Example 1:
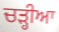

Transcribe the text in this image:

ਚੜ੍ਹੀਆ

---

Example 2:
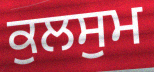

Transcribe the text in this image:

ਕੁਲਸੁਮ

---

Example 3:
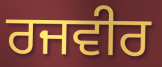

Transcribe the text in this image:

ਰਜਵੀਰ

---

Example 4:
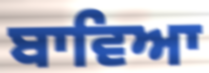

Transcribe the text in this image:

ਬਾਵਿਆ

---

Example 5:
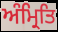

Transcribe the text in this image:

ਅੰਮ੍ਰਿਤਿ